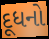
દૂધનો